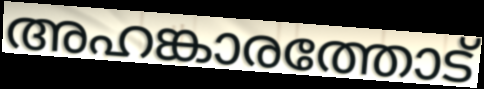
അഹങ്കാരത്തോട്